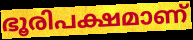
ഭൂരിപക്ഷമാണ്